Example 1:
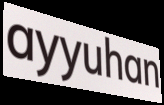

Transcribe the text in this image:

ayyuhan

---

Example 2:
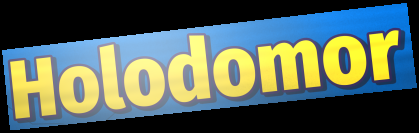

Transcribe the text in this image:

Holodomor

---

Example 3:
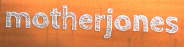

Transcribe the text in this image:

motherjones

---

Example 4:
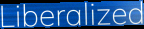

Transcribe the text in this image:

Liberalized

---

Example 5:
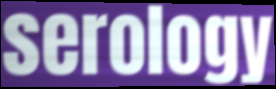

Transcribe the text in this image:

serology